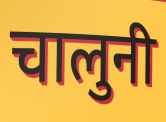
चालुनी